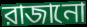
রাজানো